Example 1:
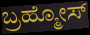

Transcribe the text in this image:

ಬ್ರಹ್ಮೋಸ್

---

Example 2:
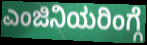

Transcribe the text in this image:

ಎಂಜಿನಿಯರಿಂಗ್ಗೆ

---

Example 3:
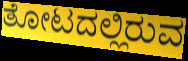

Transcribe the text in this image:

ತೋಟದಲ್ಲಿರುವ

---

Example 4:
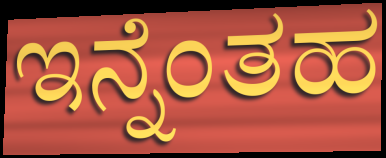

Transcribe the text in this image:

ಇನ್ನೆಂತಹ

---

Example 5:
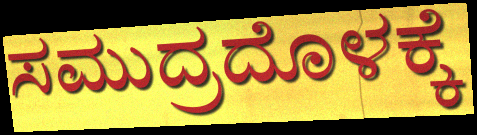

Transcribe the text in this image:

ಸಮುದ್ರದೊಳಕ್ಕೆ